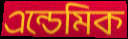
এন্ডেমিক